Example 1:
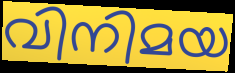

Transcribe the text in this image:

വിനിമയ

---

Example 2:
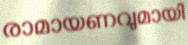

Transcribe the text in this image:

രാമായണവുമായി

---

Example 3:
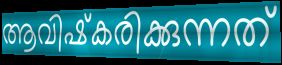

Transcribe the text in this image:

ആവിഷ്‌കരിക്കുന്നത്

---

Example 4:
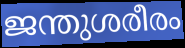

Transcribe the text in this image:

ജന്തുശരീരം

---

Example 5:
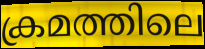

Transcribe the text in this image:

ക്രമത്തിലെ